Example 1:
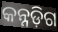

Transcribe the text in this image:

କନ୍ନଡ଼ିଗ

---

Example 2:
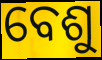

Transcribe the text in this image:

ବେଶୁ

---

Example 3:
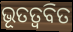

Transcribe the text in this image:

ଭୂତତ୍ଵବିତ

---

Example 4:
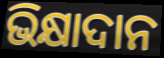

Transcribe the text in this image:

ଭିକ୍ଷାଦାନ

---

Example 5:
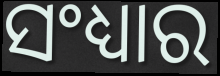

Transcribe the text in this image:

ସଂଧ୍ୟାର